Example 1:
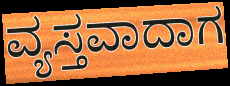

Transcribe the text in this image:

ವ್ಯಸ್ತವಾದಾಗ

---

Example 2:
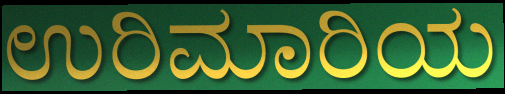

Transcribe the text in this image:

ಉರಿಮಾರಿಯ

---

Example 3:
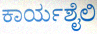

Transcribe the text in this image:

ಕಾರ್ಯಶೈಲಿ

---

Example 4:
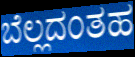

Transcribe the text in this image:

ಬೆಲ್ಲದಂತಹ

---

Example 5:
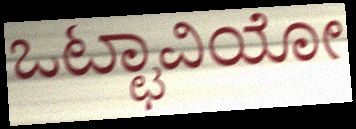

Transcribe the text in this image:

ಒಟ್ಟಾವಿಯೋ